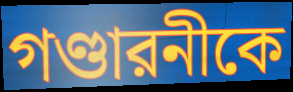
গণ্ডারনীকে